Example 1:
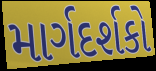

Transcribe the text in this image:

માર્ગદર્શકો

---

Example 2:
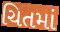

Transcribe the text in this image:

ચિતમાં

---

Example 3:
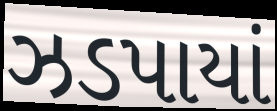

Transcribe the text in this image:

ઝડપાયાં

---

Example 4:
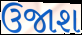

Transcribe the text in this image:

ઉજાશ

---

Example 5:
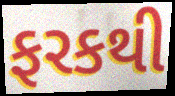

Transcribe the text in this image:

ફરકથી